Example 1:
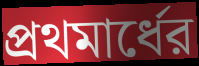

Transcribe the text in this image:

প্রথমার্ধের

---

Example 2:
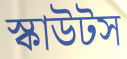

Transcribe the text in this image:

স্কাউটস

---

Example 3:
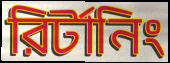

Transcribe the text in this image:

রির্টানিং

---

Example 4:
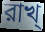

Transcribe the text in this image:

রাখ্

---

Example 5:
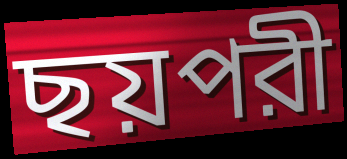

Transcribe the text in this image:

ছয়পরী